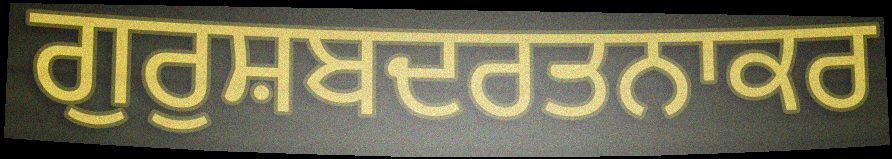
ਗੁਰੁਸ਼ਬਦਰਤਨਾਕਰ